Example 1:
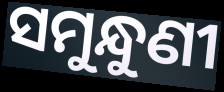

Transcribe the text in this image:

ସମୁନ୍ଧୁଣୀ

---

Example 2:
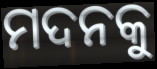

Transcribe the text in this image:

ମଦନକୁ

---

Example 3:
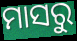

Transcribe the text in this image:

ମାସରୁ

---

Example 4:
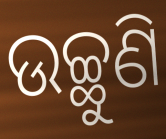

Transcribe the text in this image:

ଉଚ୍ଛୁଣି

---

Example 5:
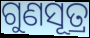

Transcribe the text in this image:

ଗୁଣସୂତ୍ର